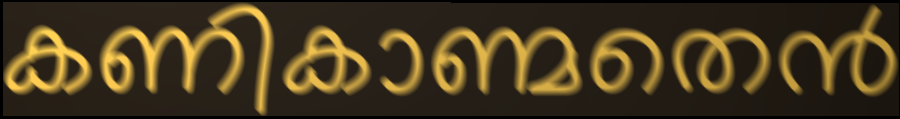
കണികാണ്മതെൻ